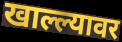
खाल्ल्यावर